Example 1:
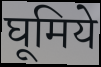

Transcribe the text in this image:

घूमिये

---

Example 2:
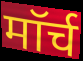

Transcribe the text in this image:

मॉर्च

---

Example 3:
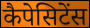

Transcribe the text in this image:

कैपेसिटेंस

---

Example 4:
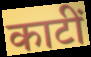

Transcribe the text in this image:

काटीं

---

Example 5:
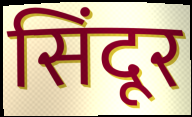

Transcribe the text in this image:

सिंदूर